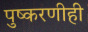
पुष्करणीही